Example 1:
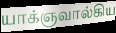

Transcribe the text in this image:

யாக்ஞவால்கிய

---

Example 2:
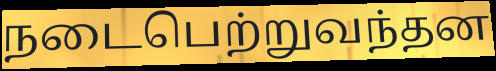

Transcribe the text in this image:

நடைபெற்றுவந்தன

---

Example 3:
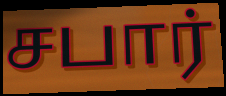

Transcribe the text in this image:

சபார்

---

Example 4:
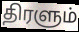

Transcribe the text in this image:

திரளும்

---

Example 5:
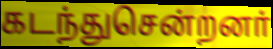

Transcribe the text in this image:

கடந்துசென்றனர்